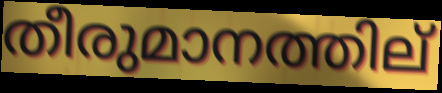
തീരുമാനത്തില്